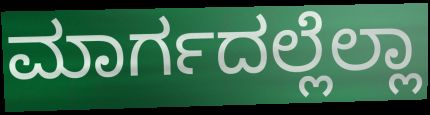
ಮಾರ್ಗದಲ್ಲೆಲ್ಲಾ